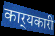
कार्यकारी